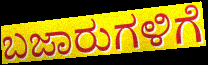
ಬಜಾರುಗಳಿಗೆ